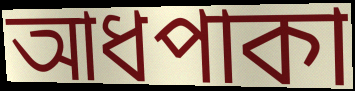
আধপাকা